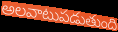
అలవాటుపడుతుంది